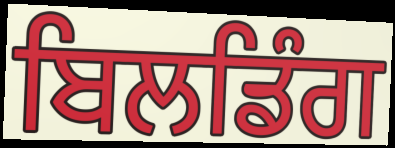
ਬਿਲਡਿੰਗ